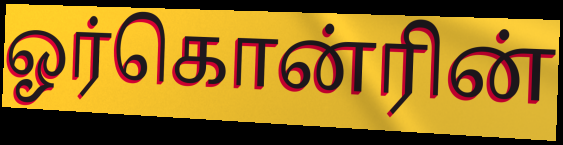
ஓர்கொன்ரின்